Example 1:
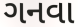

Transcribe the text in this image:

ગનવા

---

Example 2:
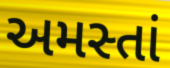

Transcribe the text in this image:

અમસ્તાં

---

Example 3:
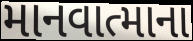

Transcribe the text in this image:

માનવાત્માના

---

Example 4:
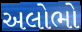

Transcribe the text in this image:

અલોભો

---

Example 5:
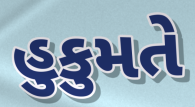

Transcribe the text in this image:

હુકુમતે